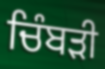
ਚਿੰਬੜੀ